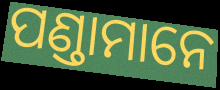
ପଣ୍ଡାମାନେ